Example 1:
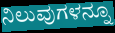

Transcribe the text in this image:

ನಿಲುವುಗಳನ್ನೂ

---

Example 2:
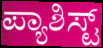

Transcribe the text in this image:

ಪ್ಯಾಶಿಸ್ಟ್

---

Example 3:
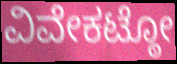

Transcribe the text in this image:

ವಿವೇಕಟ್ಠೋ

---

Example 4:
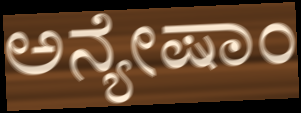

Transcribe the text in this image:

ಅನ್ಯೇಷಾಂ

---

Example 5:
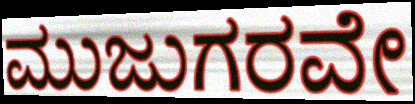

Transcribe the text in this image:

ಮುಜುಗರವೇ